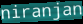
niranjan